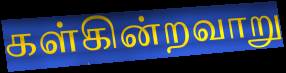
கள்கின்றவாறு